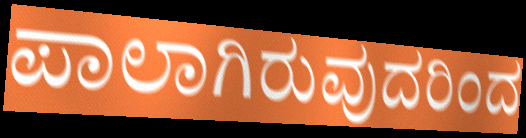
ಪಾಲಾಗಿರುವುದರಿಂದ